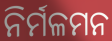
ନିର୍ମଳମନ